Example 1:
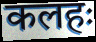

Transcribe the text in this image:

कलहः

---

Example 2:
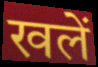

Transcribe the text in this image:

खलें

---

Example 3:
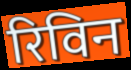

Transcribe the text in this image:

रिविन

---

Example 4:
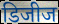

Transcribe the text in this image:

डिजीज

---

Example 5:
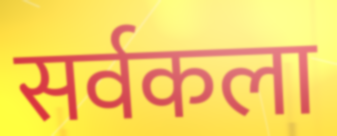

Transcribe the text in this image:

सर्वकला